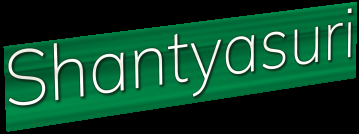
Shantyasuri